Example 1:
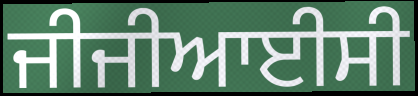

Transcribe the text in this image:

ਜੀਜੀਆਈਸੀ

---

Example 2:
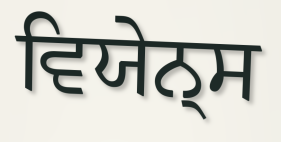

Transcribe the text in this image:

ਵਿਯੇਨ੍ਸ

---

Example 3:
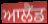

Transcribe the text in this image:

ਆਲੈਂਡ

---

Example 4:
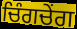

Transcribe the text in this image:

ਚਿੰਗਚੇਂਗ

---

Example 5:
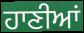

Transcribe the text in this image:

ਹਾਣੀਆਂ